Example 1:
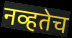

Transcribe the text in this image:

नव्हतेच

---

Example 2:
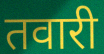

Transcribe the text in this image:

तवारी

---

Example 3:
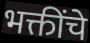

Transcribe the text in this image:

भक्तींचे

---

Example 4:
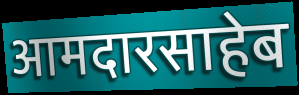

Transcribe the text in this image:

आमदारसाहेब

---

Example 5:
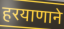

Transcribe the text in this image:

हरयाणाने